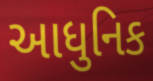
આધુનિક